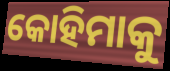
କୋହିମାକୁ